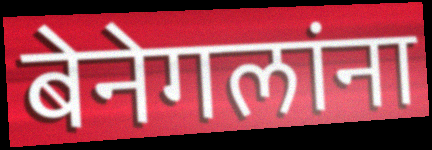
बेनेगलांना